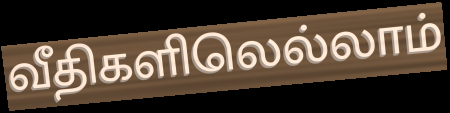
வீதிகளிலெல்லாம்